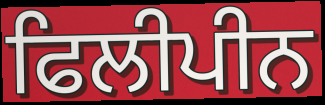
ਫਿਲੀਪੀਨ